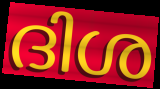
ദിശ